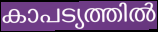
കാപട്യത്തിൽ